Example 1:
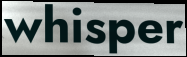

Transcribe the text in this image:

whisper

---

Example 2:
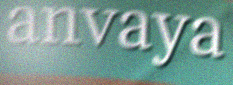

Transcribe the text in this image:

anvaya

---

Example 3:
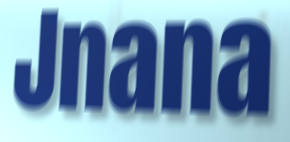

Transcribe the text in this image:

Jnana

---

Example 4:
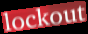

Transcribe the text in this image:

lockout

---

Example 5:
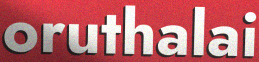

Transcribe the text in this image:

oruthalai